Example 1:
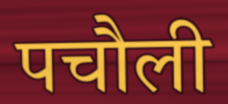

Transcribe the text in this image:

पचौली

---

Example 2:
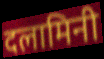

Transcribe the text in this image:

दलामिनी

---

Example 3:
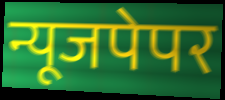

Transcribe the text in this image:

न्‍यूजपेपर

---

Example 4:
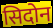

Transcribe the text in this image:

सिदोन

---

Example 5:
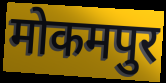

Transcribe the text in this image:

मोकमपुर